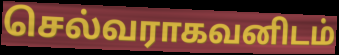
செல்வராகவனிடம்